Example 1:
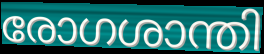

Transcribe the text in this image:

രോഗശാന്തി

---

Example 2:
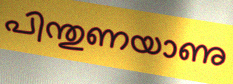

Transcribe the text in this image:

പിന്തുണയാണു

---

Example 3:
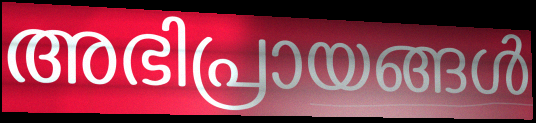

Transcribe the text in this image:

അഭിപ്രായങ്ങൾ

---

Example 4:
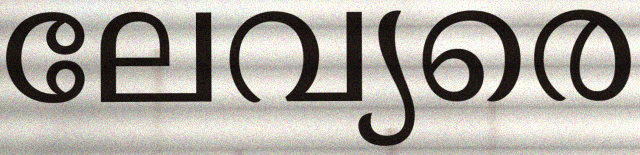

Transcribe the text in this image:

ലേവ്യരെ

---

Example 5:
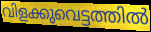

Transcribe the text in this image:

വിളക്കുവെട്ടത്തിൽ